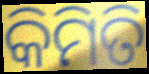
କିମିତି